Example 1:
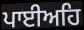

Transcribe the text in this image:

ਪਾਈਅਹਿ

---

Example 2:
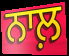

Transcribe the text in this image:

ਨਾਲ਼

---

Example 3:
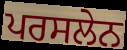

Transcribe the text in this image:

ਪਰਸਲੇਨ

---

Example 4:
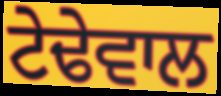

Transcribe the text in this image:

ਟੇਢੇਵਾਲ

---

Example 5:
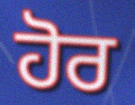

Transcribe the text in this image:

ਹੋਰ